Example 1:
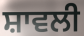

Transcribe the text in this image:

ਸ਼ਾਵਲੀ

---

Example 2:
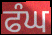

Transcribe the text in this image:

ਫੰਘ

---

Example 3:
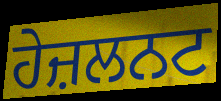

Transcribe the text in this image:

ਹੇਜ਼ਲਨਟ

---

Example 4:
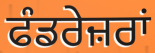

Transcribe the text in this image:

ਫੰਡਰੇਜ਼ਰਾਂ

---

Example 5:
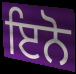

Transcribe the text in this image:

ਇਨੋ